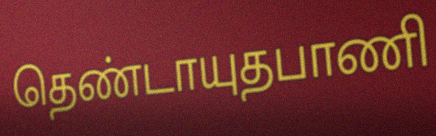
தெண்டாயுதபாணி